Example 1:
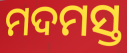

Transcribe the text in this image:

ମଦମସ୍ତ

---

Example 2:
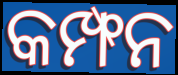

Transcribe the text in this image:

କମ୍ଫନ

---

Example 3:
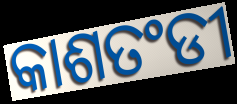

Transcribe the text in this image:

କାଶତଂଡୀ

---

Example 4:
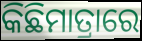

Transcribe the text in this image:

କିଛିମାତ୍ରାରେ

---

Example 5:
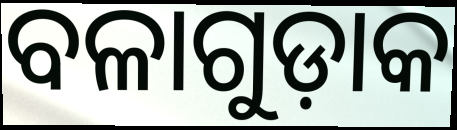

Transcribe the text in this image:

ବଳାଗୁଡ଼ାକ